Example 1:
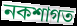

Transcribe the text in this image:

নকশাগত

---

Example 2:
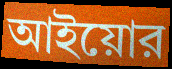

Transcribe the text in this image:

আইয়োর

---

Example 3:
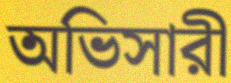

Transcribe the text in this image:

অভিসারী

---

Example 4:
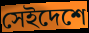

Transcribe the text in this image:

সেইদেশে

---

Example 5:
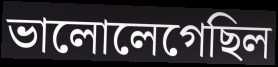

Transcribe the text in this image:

ভালোলেগেছিল